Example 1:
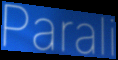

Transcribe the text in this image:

Parali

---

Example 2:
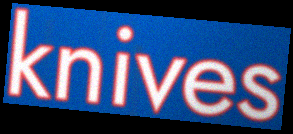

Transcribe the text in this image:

knives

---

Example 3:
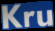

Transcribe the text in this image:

Kru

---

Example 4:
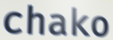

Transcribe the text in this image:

chako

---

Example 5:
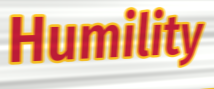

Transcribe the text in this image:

Humility